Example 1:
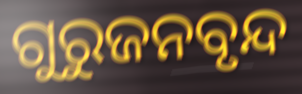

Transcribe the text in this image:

ଗୁରୁଜନବୃନ୍ଦ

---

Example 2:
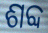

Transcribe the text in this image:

ଶବ୍ଦ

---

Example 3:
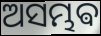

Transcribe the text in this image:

ଅସମ୍ଭଵ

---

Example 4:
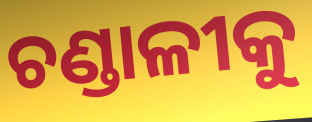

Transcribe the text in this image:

ଚଣ୍ଡାଳୀକୁ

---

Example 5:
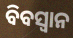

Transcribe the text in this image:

ବିବସ୍ୱାନ